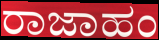
ರಾಜಾಹಂ